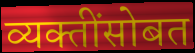
व्यक्‍तींसोबत